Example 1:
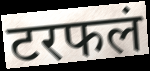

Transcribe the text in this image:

टरफलं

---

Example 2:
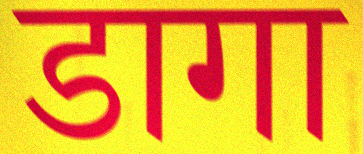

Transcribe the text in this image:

डागा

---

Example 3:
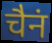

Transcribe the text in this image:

चैनं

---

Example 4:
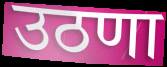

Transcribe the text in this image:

उठणा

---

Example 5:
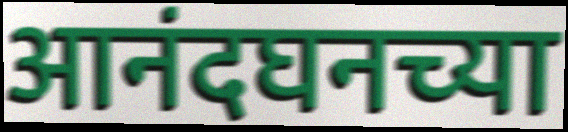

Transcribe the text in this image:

आनंदघनच्या